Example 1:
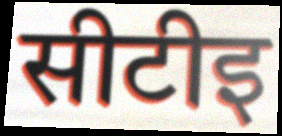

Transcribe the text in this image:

सीटीइ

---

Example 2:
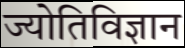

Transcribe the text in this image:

ज्योतिविज्ञान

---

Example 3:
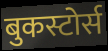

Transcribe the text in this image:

बुकस्टोर्स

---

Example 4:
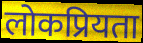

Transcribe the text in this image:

लोकप्रियता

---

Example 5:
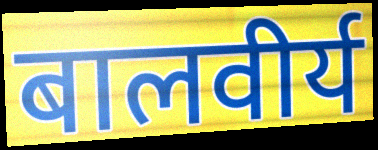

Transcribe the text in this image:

बालवीर्य